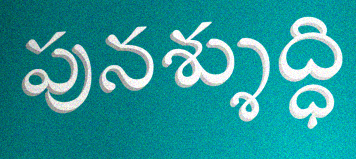
పునశ్శుద్ధి